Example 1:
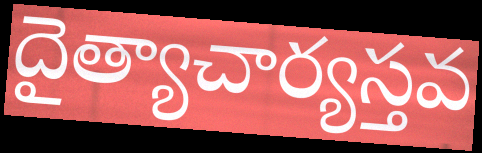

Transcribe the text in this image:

దైత్యాచార్యస్తవ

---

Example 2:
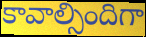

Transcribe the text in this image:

కావాల్సిందిగా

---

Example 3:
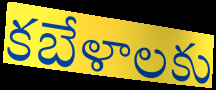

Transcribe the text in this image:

కబేళాలకు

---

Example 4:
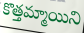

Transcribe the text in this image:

కొత్తమ్మాయిని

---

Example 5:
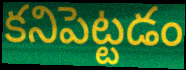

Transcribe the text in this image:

కనిపెట్టడం